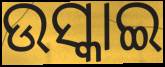
ଉସ୍କାଇ